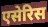
एसेरिस